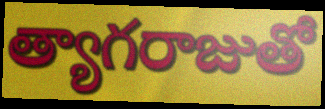
త్యాగరాజుతో